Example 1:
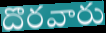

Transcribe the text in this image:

దొరవారు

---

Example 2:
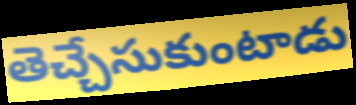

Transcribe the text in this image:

తెచ్చేసుకుంటాడు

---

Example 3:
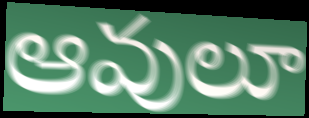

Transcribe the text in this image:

ఆవులూ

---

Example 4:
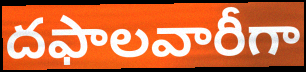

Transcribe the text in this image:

దఫాలవారీగా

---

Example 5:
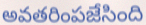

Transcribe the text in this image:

అవతరింపజేసింది